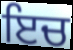
ਇਚ